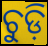
ଚୁଡ଼ି